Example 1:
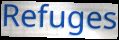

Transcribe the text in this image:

Refuges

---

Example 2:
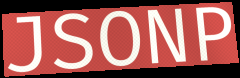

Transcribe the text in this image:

JSONP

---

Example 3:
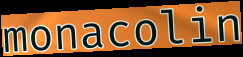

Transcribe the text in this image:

monacolin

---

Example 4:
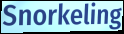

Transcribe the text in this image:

Snorkeling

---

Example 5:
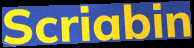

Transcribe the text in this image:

Scriabin